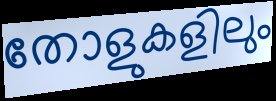
തോളുകളിലും